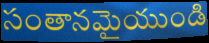
సంతానమైయుండి